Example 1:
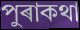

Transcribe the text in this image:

পুৰাকথা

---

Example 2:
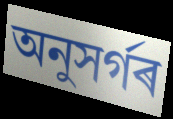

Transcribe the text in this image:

অনুসৰ্গৰ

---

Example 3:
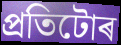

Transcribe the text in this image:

প্ৰতিটোৰ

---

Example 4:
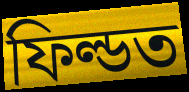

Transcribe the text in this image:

ফিল্ডত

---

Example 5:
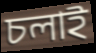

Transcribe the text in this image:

চলাই